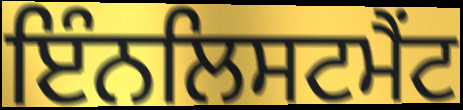
ਇੰਨਲਿਸਟਮੈਂਟ